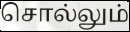
சொல்லும்